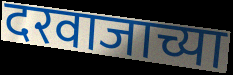
दरवाजाच्या